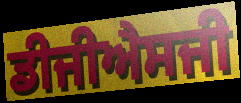
ਡੀਜੀਐਸਜੀ